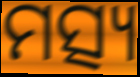
ମତ୍ସ୍ୟ